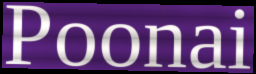
Poonai